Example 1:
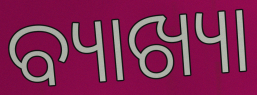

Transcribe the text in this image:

ବ୍ୟାଖ୍ୟା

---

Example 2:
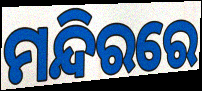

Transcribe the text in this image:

ମନ୍ଦିରରେ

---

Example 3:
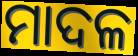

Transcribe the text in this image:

ମାଦଳ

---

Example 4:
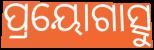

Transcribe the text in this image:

ପ୍ରୟୋଗାତ୍ସୁ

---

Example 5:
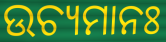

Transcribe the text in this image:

ଉଚ୍ୟମାନଃ